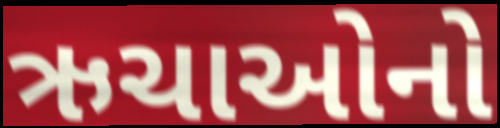
ઋચાઓનો